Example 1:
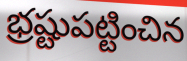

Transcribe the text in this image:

భ్రష్టుపట్టించిన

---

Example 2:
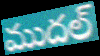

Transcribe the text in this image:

ముదల్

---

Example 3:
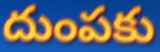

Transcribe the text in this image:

దుంపకు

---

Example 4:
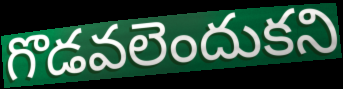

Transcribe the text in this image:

గొడవలెందుకని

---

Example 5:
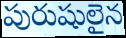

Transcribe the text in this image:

పురుషులైన